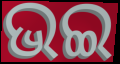
ଭଇ